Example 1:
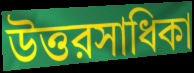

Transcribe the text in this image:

উত্তরসাধিকা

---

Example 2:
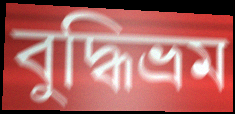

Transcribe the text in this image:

বুদ্ধিভ্রম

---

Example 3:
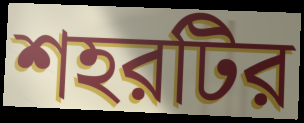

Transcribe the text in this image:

শহরটির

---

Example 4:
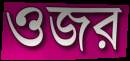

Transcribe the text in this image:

ওজর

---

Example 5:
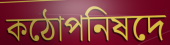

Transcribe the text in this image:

কঠোপনিষদে